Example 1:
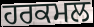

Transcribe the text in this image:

ਹਰਕਮਲ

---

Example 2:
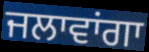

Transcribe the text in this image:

ਜਲਾਵਾਂਗਾ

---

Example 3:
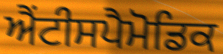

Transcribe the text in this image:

ਐਂਟੀਸਪੈਮੋਡਿਕ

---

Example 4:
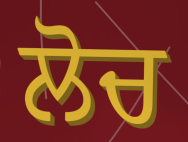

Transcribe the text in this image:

ਲੋਚ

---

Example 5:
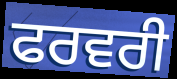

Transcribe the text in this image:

ਫਰਵਰੀ